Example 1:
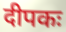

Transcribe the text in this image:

दीपकः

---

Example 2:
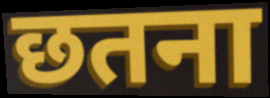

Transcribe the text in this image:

छतना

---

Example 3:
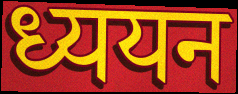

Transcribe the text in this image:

ध्ययन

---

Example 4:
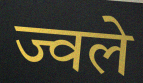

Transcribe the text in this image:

ज्वले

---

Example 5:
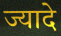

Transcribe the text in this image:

ज्यादे